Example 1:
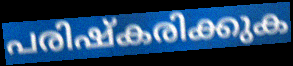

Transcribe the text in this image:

പരിഷ്കരിക്കുക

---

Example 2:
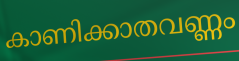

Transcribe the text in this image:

കാണിക്കാതവണ്ണം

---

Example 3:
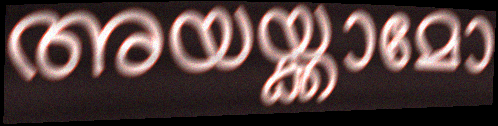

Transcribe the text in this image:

അയയ്ക്കാമോ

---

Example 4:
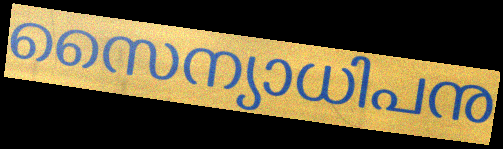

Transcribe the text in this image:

സൈന്യാധിപനു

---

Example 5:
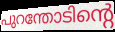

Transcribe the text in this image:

പുറന്തോടിന്റെ